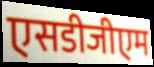
एसडीजीएम